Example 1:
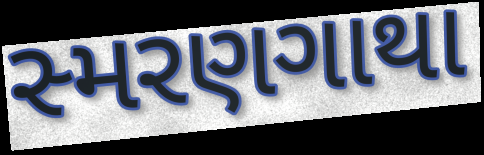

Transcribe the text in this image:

સ્મરણગાથા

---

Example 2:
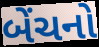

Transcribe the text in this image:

બેંચનો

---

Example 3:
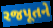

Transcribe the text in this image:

રજપૂતને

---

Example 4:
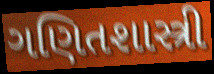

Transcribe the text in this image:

ગણિતશાસ્ત્રી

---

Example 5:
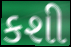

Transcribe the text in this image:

કશી